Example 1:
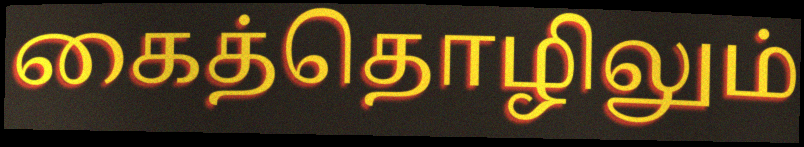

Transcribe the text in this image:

கைத்தொழிலும்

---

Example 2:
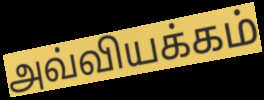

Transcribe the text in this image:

அவ்வியக்கம்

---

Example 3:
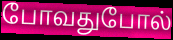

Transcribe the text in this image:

போவதுபோல்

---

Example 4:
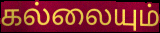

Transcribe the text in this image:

கல்லையும்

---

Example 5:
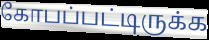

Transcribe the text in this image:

கோபப்பட்டிருக்க